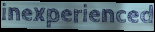
inexperienced